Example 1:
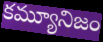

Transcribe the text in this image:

కమ్యూనిజం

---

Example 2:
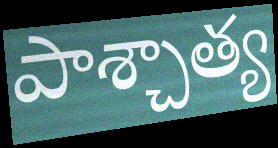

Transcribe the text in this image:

పాశ్చాత్య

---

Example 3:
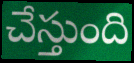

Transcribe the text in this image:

చేస్తుంది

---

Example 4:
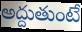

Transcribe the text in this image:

అద్దుతుంటే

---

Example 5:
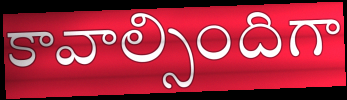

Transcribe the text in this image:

కావాల్సిందిగా